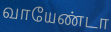
வாயேண்டா